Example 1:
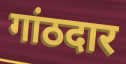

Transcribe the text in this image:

गांठदार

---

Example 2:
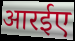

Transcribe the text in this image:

आरईए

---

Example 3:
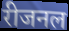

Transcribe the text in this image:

रीजनल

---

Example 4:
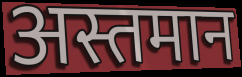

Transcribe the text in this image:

अस्तमान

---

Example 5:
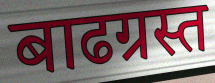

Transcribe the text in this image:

बाढग्रस्त